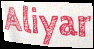
Aliyar